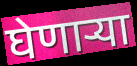
घेणाऱ्या